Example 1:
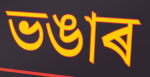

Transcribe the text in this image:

ভঙাৰ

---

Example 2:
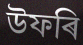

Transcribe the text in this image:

উফৰি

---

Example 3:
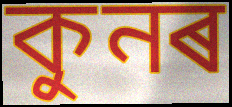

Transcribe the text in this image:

কুনৰ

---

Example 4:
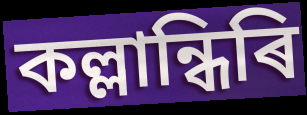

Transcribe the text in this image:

কল্লান্ধিৰি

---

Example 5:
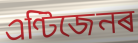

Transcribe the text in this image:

এণ্টিজেনৰ